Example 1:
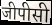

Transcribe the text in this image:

जीपीसी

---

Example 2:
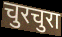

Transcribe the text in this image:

चुरचुरा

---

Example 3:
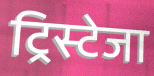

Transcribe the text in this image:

ट्रिस्टेजा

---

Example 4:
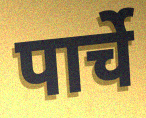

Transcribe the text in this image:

पार्चे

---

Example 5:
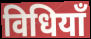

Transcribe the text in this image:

विधियाँ